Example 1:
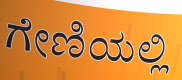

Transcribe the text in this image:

ಗೇಣಿಯಲ್ಲಿ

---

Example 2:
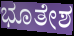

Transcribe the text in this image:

ಭೂತೇಶ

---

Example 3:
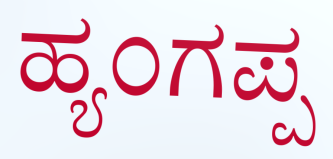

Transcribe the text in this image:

ಹ್ಯಂಗಪ್ಪ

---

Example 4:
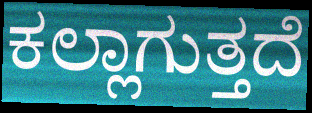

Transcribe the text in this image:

ಕಲ್ಲಾಗುತ್ತದೆ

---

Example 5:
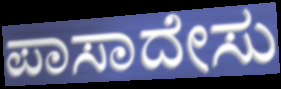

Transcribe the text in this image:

ಪಾಸಾದೇಸು